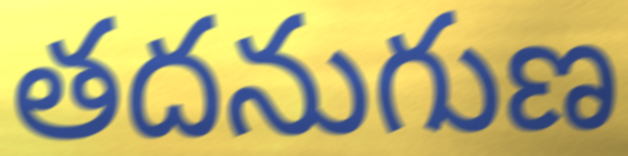
తదనుగుణ